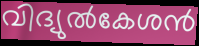
വിദ്യുൽകേശൻ